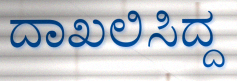
ದಾಖಲಿಸಿದ್ದ